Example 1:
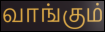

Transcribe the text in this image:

வாங்கும்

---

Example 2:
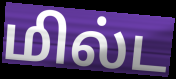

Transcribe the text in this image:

மில்ட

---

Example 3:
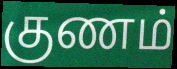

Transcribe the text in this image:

குணம்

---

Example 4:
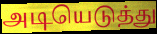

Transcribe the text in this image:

அடியெடுத்து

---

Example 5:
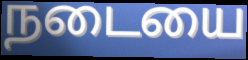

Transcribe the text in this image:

நடையை